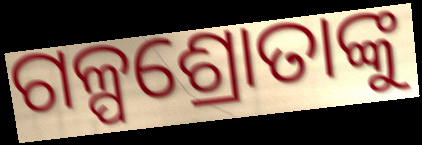
ଗଳ୍ପଶ୍ରୋତାଙ୍କୁ